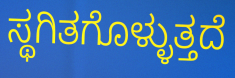
ಸ್ಥಗಿತಗೊಳ್ಳುತ್ತದೆ